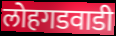
लोहगडवाडी